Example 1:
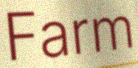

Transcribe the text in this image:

Farm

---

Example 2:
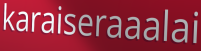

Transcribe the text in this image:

karaiseraaalai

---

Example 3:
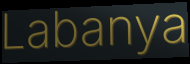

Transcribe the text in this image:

Labanya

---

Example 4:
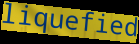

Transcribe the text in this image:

liquefied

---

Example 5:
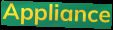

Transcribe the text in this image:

Appliance